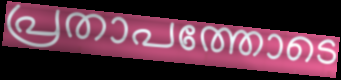
പ്രതാപത്തോടെ